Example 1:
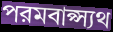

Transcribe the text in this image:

পরমবাপ্স্যথ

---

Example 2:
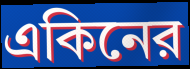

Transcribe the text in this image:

একিনের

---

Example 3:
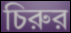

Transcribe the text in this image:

চিরুর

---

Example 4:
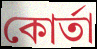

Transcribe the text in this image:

কোর্তা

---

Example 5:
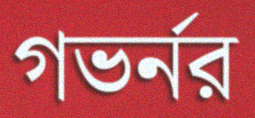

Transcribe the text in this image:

গভর্নর